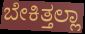
ಬೇಕಿತ್ತಲ್ಲಾ